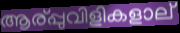
ആര്പ്പുവിളികളാല്